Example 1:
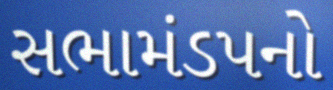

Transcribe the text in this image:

સભામંડપનો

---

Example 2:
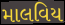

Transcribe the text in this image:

માલવિય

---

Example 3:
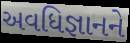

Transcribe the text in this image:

અવધિજ્ઞાનને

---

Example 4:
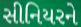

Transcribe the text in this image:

સીનિયરને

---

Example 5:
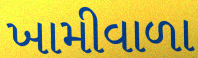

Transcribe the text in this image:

ખામીવાળા